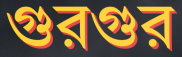
গুরগুর